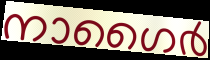
നാഗൈർ